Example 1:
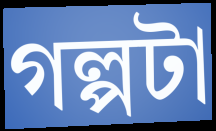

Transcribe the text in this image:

গল্পটা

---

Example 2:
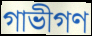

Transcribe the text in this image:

গাভীগণ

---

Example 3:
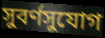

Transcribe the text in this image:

সুবর্ণসুযোগ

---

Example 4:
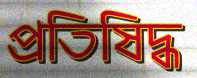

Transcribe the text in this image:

প্রতিষিদ্ধ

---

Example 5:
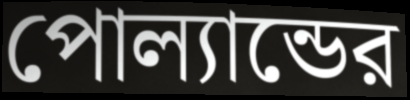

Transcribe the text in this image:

পোল্যান্ডের